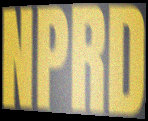
NPRD